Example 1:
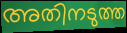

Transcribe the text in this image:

അതിനടുത്ത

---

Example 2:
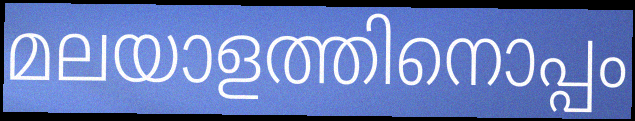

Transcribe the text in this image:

മലയാളത്തിനൊപ്പം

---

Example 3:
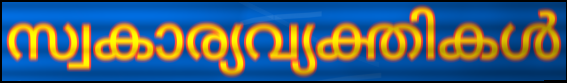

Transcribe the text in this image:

സ്വകാര്യവ്യക്തികൾ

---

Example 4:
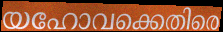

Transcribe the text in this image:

യഹോവക്കെതിരെ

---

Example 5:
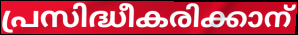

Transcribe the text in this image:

പ്രസിദ്ധീകരിക്കാന്